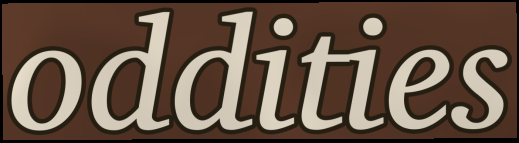
oddities